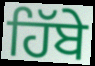
ਹਿੱਬੇ